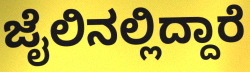
ಜೈಲಿನಲ್ಲಿದ್ದಾರೆ